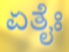
ಏತೈಃ